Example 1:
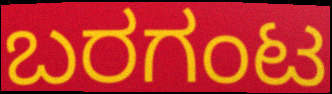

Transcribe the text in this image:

ಬರಗಂಟ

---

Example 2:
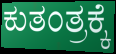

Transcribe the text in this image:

ಕುತಂತ್ರಕ್ಕೆ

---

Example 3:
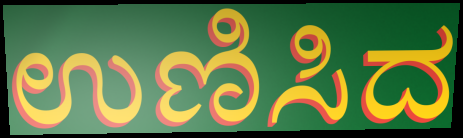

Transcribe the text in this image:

ಉಣಿಸಿದ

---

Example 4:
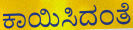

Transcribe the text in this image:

ಕಾಯಿಸಿದಂತೆ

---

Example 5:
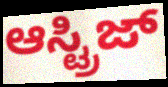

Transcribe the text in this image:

ಆಸ್ಟ್ರಿಜ್